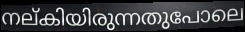
നല്കിയിരുന്നതുപോലെ